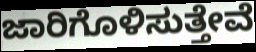
ಜಾರಿಗೊಳಿಸುತ್ತೇವೆ